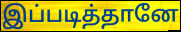
இப்படித்தானே